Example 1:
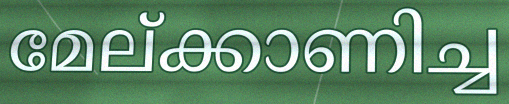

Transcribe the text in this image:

മേല്ക്കാണിച്ച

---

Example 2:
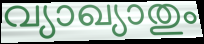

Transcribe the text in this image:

വ്യാഖ്യാതും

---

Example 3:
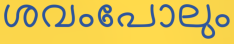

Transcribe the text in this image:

ശവംപോലും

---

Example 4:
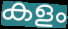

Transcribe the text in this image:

കളം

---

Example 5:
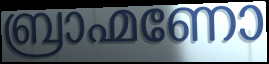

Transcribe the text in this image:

ബ്രാഹ്മണോ